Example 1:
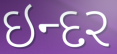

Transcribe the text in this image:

ઇન્દર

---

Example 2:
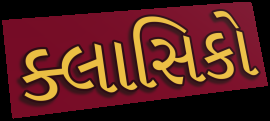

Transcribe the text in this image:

ક્લાસિકો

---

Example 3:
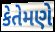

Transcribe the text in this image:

કેતેમણે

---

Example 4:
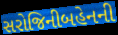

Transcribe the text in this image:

સરોજિનીબહેનની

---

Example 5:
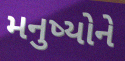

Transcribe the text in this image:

મનુષ્યોને